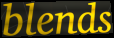
blends